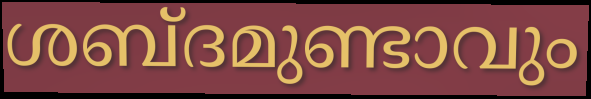
ശബ്ദമുണ്ടാവും